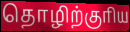
தொழிற்குரிய